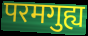
परमगुह्य